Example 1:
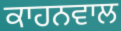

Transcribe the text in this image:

ਕਾਹਨਵਾਲ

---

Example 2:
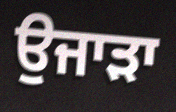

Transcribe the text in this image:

ਉਜਾੜਾ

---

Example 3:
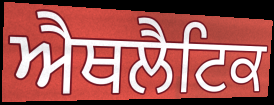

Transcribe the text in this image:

ਐਥਲੈਟਿਕ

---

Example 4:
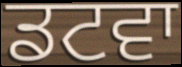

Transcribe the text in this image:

ਡਟਵਾ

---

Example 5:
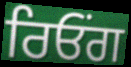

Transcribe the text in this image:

ਰਿਓਂਗ